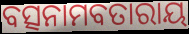
ବତ୍ସନାମବତାରାୟ